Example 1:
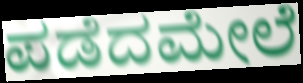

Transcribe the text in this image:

ಪಡೆದಮೇಲೆ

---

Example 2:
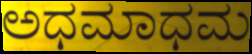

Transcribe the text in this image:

ಅಧಮಾಧಮ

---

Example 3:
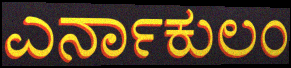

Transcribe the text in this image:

ಎರ್ನಾಕುಲಂ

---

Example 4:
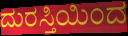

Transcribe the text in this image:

ದುರಸ್ತಿಯಿಂದ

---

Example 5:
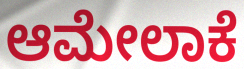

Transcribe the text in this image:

ಆಮೇಲಾಕೆ